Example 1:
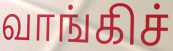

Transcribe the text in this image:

வாங்கிச்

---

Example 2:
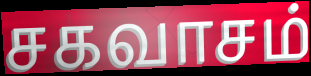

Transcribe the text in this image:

சகவாசம்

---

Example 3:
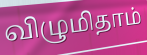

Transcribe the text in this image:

விழுமிதாம்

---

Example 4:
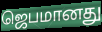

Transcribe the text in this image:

ஜெபமானது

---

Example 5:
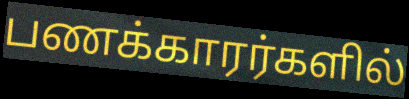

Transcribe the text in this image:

பணக்காரர்களில்